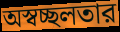
অস্বচ্ছলতার